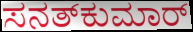
ಸನತ್‌ಕುಮಾರ್